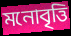
মনোবৃত্তি